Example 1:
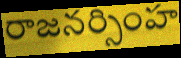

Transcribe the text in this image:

రాజనర్సింహ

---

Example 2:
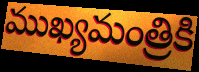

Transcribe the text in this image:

ముఖ్యమంత్రికి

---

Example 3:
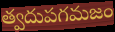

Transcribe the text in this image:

త్వదుపగమజం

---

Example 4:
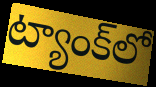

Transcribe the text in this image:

ట్యాంక్‌లో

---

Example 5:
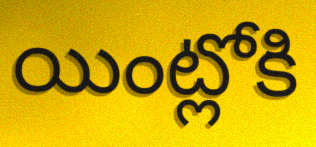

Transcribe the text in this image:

యింట్లోకి